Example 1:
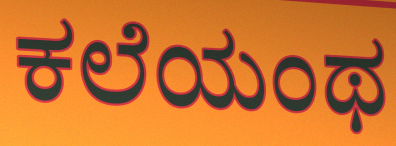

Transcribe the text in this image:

ಕಲೆಯಂಥ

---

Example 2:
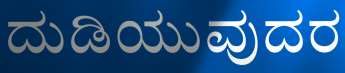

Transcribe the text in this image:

ದುಡಿಯುವುದರ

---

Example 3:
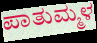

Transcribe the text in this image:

ಪಾತುಮ್ಮಳ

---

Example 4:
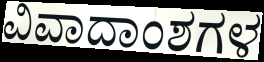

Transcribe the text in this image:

ವಿವಾದಾಂಶಗಳ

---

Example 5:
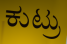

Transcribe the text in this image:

ಕುಟ್ರು